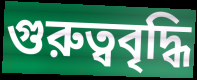
গুরুত্ববৃদ্ধি